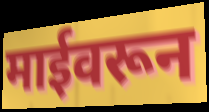
माईवरून